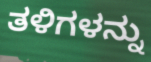
ತಳಿಗಳನ್ನು